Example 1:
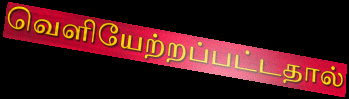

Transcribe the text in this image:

வெளியேற்றப்பட்டதால்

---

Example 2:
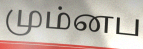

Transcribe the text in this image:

மும்னப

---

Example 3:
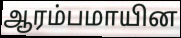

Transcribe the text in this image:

ஆரம்பமாயின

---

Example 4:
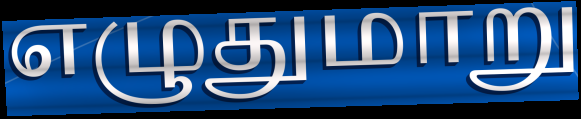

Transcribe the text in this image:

எழுதுமாறு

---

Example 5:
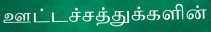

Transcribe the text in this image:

ஊட்டச்சத்துக்களின்